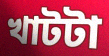
খাটটা